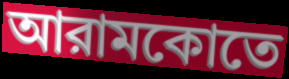
আরামকোতে